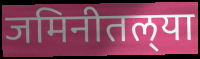
जमिनीतल्या